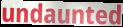
undaunted